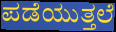
ಪಡೆಯುತ್ತಲೆ